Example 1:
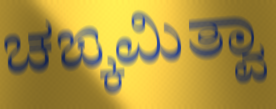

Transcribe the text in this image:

ಚಙ್ಕಮಿತ್ವಾ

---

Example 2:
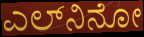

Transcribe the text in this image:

ಎಲ್‍ನಿನೋ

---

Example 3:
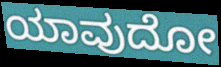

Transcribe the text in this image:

ಯಾವುದೋ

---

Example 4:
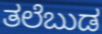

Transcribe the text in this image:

ತಲೆಬುಡ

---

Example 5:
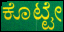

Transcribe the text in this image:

ಕೊಟ್ಟೇ